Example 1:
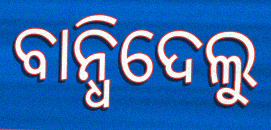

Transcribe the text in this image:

ବାନ୍ଧିଦେଲୁ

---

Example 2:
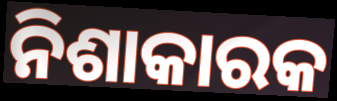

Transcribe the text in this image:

ନିଶାକାରକ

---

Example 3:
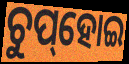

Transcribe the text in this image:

ଚୁପ୍‌ହୋଇ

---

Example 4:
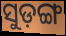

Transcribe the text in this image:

ସୁଡ଼ଙ୍ଗ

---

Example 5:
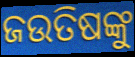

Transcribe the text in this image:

ଜଉତିଷଙ୍କୁ